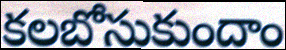
కలబోసుకుందాం